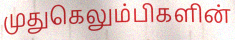
முதுகெலும்பிகளின்